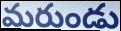
మరుండు